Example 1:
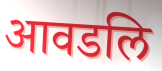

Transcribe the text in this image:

आवडलि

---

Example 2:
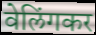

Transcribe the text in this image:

वेलिंगकर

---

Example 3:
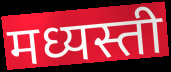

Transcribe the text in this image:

मध्यस्ती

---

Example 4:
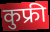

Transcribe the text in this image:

कुफ्री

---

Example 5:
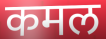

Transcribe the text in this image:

कमल